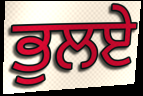
ਭੁਲਏ